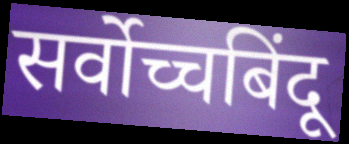
सर्वोच्चबिंदू